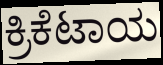
ಕ್ರಿಕೆಟಾಯ